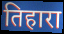
तिहारा